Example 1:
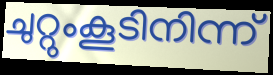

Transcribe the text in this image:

ചുറ്റുംകൂടിനിന്ന്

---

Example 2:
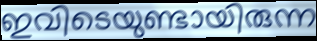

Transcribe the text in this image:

ഇവിടെയുണ്ടായിരുന്ന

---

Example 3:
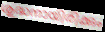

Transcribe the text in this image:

ശുദ്ധനായിരിക്കും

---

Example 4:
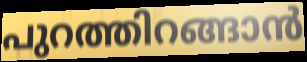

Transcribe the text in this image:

പുറത്തിറങ്ങാൻ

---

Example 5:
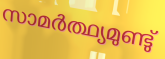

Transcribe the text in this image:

സാമർത്ഥ്യമുണ്ടു്